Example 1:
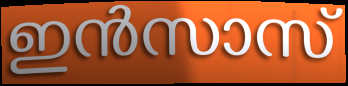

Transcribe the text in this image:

ഇൻസാസ്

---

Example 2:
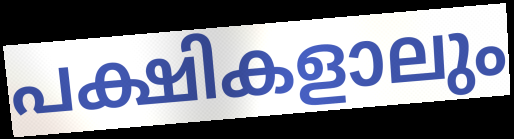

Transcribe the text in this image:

പക്ഷികളാലും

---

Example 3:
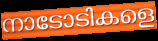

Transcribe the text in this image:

നാടോടികളെ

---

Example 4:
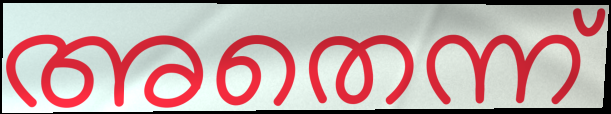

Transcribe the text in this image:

അതെന്ന്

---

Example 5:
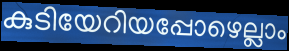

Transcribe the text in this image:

കുടിയേറിയപ്പോഴെല്ലാം